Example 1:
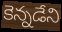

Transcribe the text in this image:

కెన్నడేని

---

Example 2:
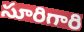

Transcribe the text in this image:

సూరిగారి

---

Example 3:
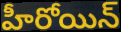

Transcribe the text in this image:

హీరోయిన్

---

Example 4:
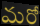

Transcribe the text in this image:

మరో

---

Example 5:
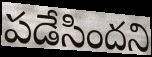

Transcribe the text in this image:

పడేసిందని